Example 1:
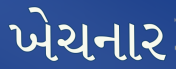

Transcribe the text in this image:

ખેચનાર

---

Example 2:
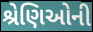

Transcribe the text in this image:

શ્રેણિઓની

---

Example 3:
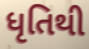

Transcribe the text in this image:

ધૃતિથી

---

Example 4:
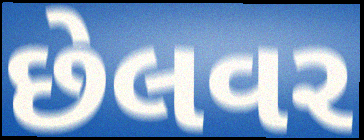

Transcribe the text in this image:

છેલવર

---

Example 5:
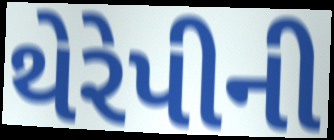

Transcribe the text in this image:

થેરેપીની